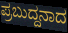
ಪ್ರಬುದ್ದನಾದ